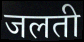
जलती